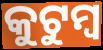
କୁଟୁମ୍ଵ